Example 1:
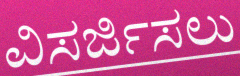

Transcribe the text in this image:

ವಿಸರ್ಜಿಸಲು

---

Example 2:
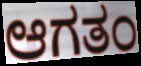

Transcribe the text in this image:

ಆಗತಂ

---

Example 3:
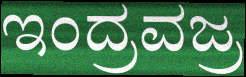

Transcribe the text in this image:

ಇಂದ್ರವಜ್ರ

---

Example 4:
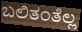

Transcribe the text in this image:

ಬಲಿತಂತೆಲ್ಲ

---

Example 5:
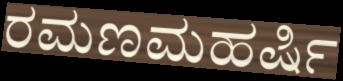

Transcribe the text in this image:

ರಮಣಮಹರ್ಷಿ